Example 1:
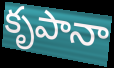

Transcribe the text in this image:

కృపానా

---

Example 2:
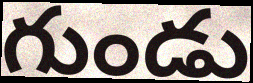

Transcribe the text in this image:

గుండు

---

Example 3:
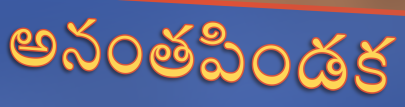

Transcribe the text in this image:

అనంతపిండక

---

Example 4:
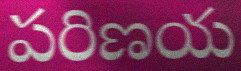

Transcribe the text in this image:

పరిణయ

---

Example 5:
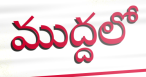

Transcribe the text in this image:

ముద్దలో